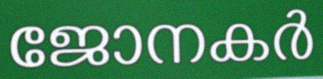
ജോനകർ